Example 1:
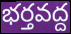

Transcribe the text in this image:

భర్తవద్ద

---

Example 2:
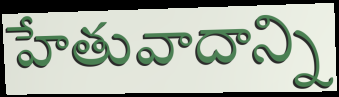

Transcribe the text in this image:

హేతువాదాన్ని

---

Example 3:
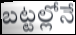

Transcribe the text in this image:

బట్టల్లోనే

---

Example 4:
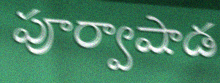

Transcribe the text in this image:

పూర్వాషాడ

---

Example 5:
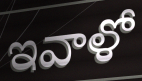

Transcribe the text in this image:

ఇవాళో